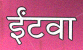
ईंटवा